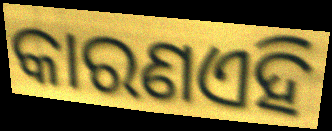
କାରଣଏହି